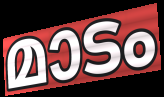
മാടം